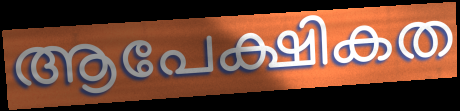
ആപേക്ഷികത